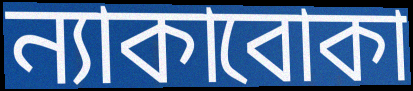
ন্যাকাবোকা